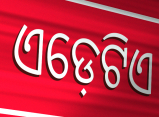
ଏଡ଼େଟିଏ